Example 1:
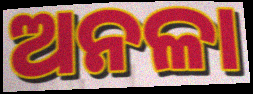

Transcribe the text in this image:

ଅନଳା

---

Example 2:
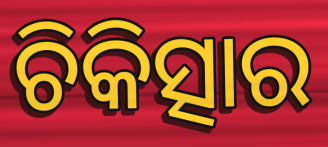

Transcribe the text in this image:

ଚିକିତ୍ସାର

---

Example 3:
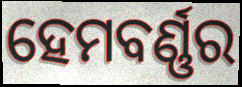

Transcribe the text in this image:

ହେମବର୍ଣ୍ଣର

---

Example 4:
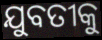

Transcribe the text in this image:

ଯୁବତୀକୁ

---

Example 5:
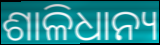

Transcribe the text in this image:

ଶାଳିଧାନ୍ୟ